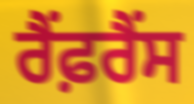
ਰੈਂਫ਼ਰੈਂਸ